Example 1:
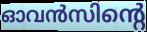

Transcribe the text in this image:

ഓവൻസിന്റെ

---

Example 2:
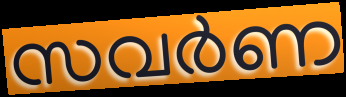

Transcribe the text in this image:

സവർണ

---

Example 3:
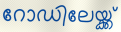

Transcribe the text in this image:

റോഡിലേയ്ക്ക്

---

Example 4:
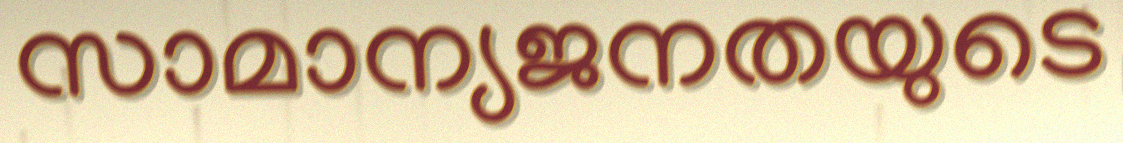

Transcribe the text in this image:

സാമാന്യജനതയുടെ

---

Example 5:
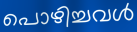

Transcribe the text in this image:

പൊഴിച്ചവൾ